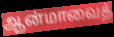
ஆன்மாவைத்